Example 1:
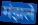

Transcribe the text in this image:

मंझले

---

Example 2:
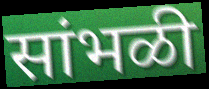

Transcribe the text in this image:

सांभळी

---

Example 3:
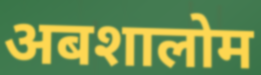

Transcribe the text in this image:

अबशालोम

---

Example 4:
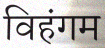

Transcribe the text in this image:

विहंगम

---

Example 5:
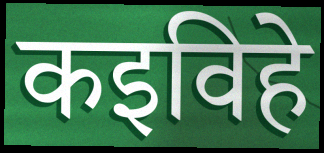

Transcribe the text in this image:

कइविहे